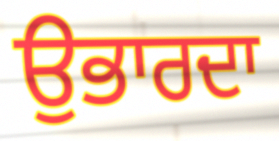
ਉਭਾਰਦਾ